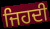
ਜਿਹਦੀ